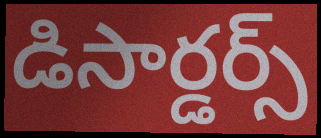
డిసార్డర్స్